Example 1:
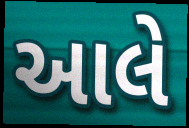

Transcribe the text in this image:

આલે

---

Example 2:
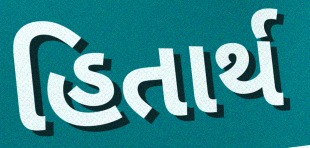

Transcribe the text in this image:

હિતાર્થ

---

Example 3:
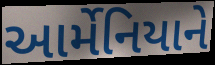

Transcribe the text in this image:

આર્મેનિયાને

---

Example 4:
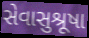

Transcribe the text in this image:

સેવાસુશ્રૂષા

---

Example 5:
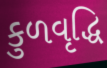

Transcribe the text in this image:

કુળવૃદ્ધિ